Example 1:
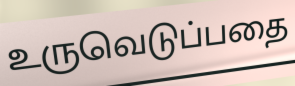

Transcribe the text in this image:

உருவெடுப்பதை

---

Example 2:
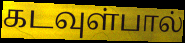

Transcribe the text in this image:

கடவுள்பால்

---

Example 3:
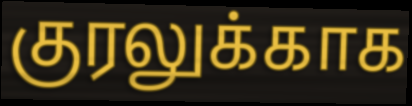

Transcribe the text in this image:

குரலுக்காக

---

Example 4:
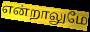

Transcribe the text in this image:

என்றாலுமே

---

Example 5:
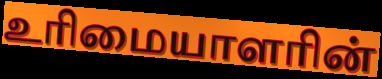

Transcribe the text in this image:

உரிமையாளரின்